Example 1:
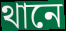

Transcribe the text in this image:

থানে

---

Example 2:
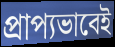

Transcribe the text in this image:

প্রাপ্যভাবেই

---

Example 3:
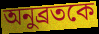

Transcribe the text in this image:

অনুব্রতকে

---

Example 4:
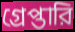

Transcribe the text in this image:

গ্রেপ্তারি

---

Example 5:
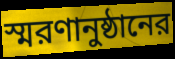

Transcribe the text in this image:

স্মরণানুষ্ঠানের